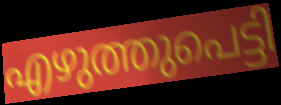
എഴുത്തുപെട്ടി